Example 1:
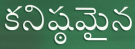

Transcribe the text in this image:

కనిష్ఠమైన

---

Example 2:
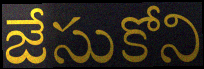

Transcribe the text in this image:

జేసుకోని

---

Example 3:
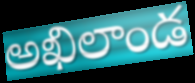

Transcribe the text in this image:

అఖిలాండ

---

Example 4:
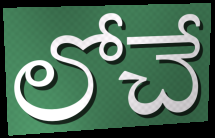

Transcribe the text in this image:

లోచే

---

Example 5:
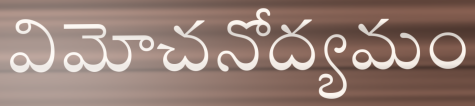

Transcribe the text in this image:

విమోచనోద్యమం